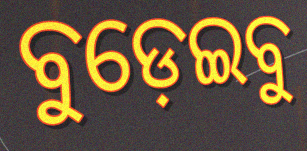
ବୁଡ଼େଇବୁ